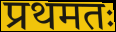
प्रथमतः